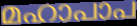
മഹാപാപ